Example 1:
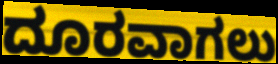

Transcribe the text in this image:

ದೂರವಾಗಲು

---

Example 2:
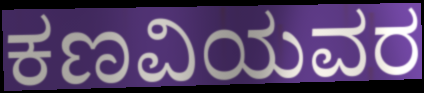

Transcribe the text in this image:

ಕಣವಿಯವರ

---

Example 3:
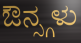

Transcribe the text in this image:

ಔನ್ಸ್ಗಳು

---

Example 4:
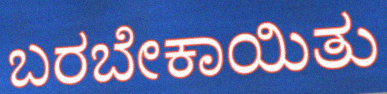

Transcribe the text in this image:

ಬರಬೇಕಾಯಿತು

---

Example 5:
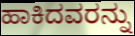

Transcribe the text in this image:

ಹಾಕಿದವರನ್ನು